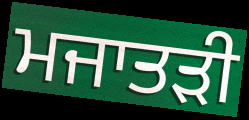
ਮਜਾਤੜੀ